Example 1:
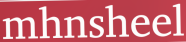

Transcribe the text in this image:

mhnsheel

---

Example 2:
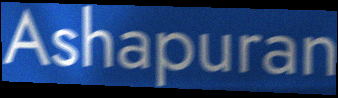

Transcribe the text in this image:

Ashapuran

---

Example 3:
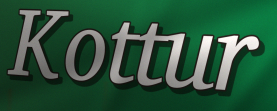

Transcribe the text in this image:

Kottur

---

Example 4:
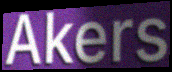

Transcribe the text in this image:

Akers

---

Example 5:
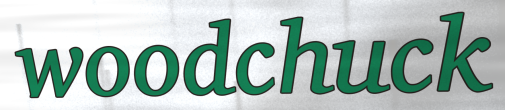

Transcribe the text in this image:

woodchuck